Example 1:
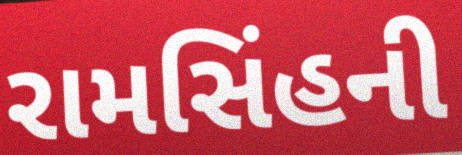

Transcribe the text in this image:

રામસિંહની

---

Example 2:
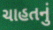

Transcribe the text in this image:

ચાહતનું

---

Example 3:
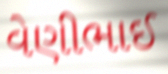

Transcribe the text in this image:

વેણીભાઈ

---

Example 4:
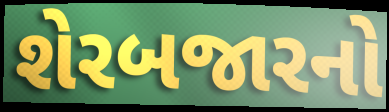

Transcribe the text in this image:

શેરબજારનો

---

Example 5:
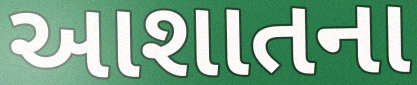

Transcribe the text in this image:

આશાતના